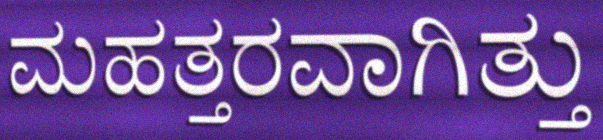
ಮಹತ್ತರವಾಗಿತ್ತು